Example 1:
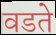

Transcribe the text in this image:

वडते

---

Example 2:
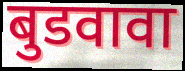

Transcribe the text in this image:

बुडवावा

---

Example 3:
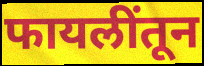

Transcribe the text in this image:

फायलींतून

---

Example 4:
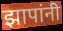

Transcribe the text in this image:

झापांनी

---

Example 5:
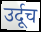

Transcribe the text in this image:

उर्दूच